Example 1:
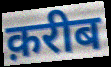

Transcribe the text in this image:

क़रीब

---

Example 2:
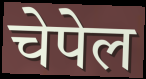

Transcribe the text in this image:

चेपेल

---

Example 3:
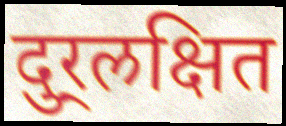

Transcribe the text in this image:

दुर्लक्षित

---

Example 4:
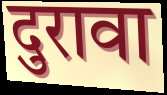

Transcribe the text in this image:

दुरावा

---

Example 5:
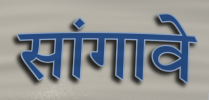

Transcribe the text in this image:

सांगावे